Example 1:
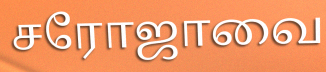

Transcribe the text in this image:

சரோஜாவை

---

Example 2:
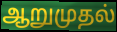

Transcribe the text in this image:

ஆறுமுதல்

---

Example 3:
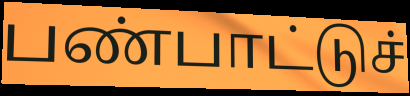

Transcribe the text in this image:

பண்பாட்டுச்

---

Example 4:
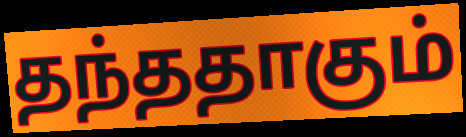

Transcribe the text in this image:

தந்ததாகும்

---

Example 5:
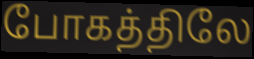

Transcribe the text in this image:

போகத்திலே